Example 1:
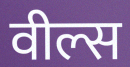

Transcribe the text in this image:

वील्स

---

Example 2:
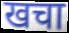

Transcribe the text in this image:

खचा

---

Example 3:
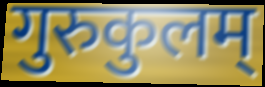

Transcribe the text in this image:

गुरुकुलम्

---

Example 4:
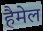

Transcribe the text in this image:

हैमेल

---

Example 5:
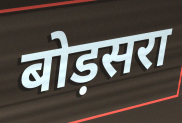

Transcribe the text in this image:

बोड़सरा